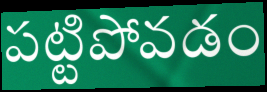
పట్టిపోవడం